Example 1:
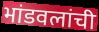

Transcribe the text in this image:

भांडवलांची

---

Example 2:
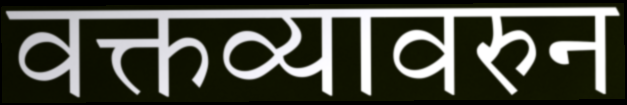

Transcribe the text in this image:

वक्तव्यावरुन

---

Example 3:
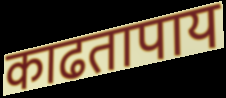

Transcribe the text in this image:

काढतापाय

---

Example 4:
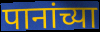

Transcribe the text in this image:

पानांच्या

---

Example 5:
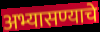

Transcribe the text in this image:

अभ्यासण्याचे